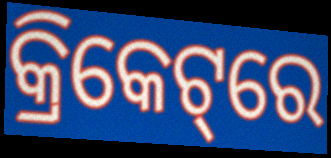
କ୍ରିକେଟ୍‌ରେ